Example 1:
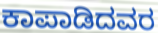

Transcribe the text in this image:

ಕಾಪಾಡಿದವರ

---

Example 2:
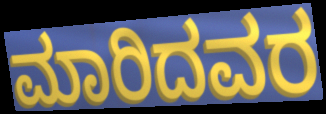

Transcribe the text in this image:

ಮಾರಿದವರ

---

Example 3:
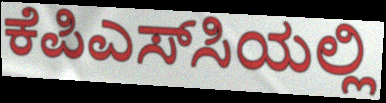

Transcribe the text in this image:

ಕೆಪಿಎಸ್‌ಸಿಯಲ್ಲಿ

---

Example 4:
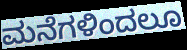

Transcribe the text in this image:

ಮನೆಗಳಿಂದಲೂ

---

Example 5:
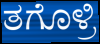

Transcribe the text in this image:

ತಗೊಳ್ರಿ